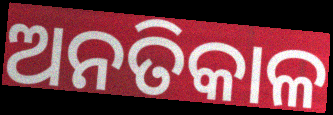
ଅନତିକାଳ